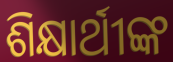
ଶିକ୍ଷାର୍ଥୀଙ୍କ